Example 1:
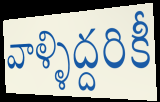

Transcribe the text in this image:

వాళ్ళిద్దరికీ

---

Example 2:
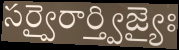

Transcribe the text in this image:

సర్వైరార్త్విజ్యైః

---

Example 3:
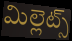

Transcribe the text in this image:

మిల్లెట్స్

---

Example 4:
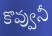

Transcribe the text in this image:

కొవ్వునీ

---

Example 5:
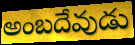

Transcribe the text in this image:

అంబదేవుడు